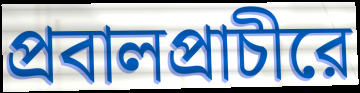
প্রবালপ্রাচীরে